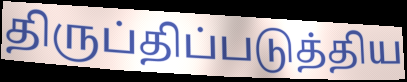
திருப்திப்படுத்திய